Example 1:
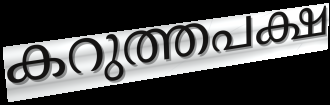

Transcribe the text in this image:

കറുത്തപക്ഷ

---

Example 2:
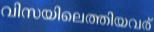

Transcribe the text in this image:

വിസയിലെത്തിയവര്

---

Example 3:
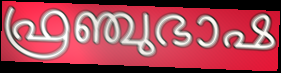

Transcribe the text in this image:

ഫ്രഞ്ചുഭാഷ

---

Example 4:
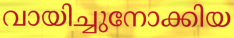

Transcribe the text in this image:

വായിച്ചുനോക്കിയ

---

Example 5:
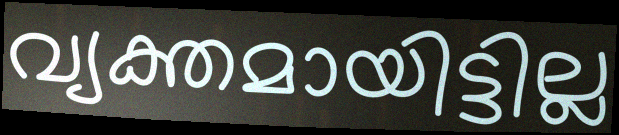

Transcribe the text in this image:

വ്യക്തമായിട്ടില്ല